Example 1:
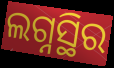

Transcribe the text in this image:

ଲଗ୍ନସ୍ଥିର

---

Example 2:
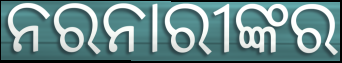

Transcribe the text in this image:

ନରନାରୀଙ୍କର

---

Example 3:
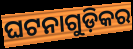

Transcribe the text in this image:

ଘଟନାଗୁଡ଼ିକର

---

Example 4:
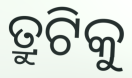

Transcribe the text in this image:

ତ୍ରୁଟିକୁ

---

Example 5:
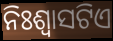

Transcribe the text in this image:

ନିଃଶ୍ୱାସଟିଏ